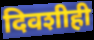
दिवशीही